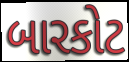
બારકોટ